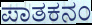
ಪಾತಕನಂ